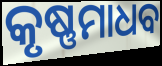
କୃଷ୍ଣମାଧବ